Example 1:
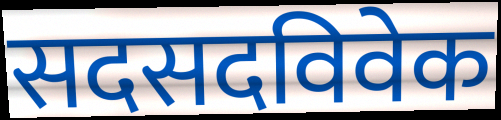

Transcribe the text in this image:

सदसदविवेक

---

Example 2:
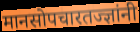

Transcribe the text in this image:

मानसोपचारतज्ज्ञांनी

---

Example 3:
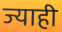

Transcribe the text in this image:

ज्याही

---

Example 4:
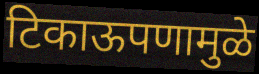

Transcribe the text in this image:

टिकाऊपणामुळे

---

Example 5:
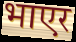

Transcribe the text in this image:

भाएर